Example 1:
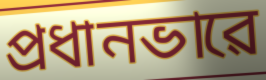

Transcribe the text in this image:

প্ৰধানভাৱে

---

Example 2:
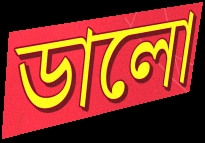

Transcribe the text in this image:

ডালো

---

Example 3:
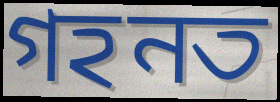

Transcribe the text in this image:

গহনত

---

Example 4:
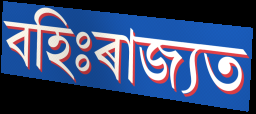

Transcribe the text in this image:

বহিঃৰাজ্যত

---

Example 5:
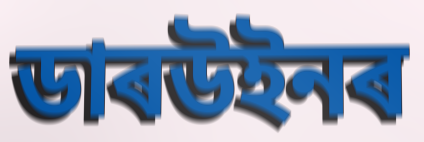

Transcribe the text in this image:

ডাৰউইনৰ